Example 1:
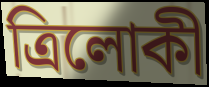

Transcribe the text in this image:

ত্রিলোকী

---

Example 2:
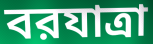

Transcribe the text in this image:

বরযাত্রা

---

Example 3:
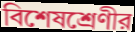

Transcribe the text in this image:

বিশেষশ্রেণীর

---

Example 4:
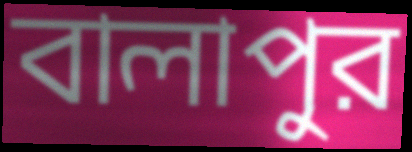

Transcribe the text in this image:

বালাপুর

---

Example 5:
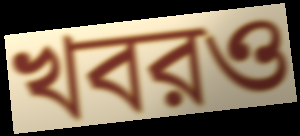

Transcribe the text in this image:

খবরও